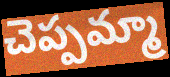
చెప్పమ్మా